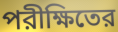
পরীক্ষিতের